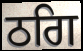
ਠਗਿ